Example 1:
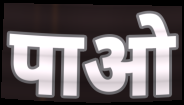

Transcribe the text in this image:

पाओ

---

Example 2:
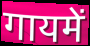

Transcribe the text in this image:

गायमें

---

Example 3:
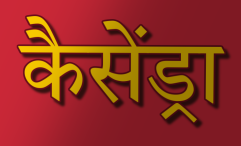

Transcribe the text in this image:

कैसेंड्रा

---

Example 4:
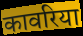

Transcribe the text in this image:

कावरिया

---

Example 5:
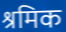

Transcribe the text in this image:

श्रमिक